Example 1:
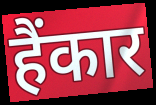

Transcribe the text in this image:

हैंकार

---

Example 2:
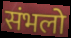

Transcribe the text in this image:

संभलो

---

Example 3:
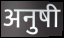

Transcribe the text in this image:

अनुषी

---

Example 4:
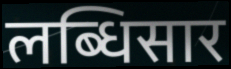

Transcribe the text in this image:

लब्धिसार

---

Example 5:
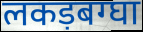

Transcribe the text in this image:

लकड़बग्घा